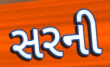
સરની